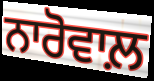
ਨਾਰੋਵਾਲ਼